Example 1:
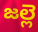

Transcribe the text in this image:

జల్లె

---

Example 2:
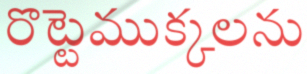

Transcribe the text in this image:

రొట్టెముక్కలను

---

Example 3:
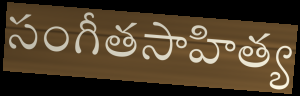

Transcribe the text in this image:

సంగీతసాహిత్య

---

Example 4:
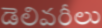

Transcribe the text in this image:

డెలివరీలు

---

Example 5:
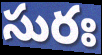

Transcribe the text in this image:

సురః